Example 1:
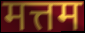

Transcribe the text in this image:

मत्तम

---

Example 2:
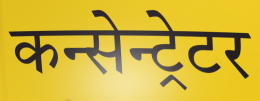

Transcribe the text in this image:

कन्सेन्ट्रेटर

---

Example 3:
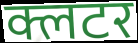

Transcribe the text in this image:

क्लटर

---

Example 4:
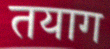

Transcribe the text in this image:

तयाग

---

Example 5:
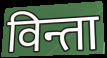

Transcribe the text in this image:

विन्ता